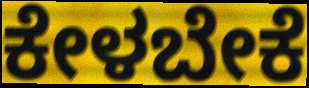
ಕೇಳಬೇಕೆ